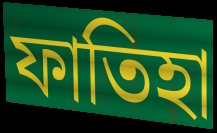
ফাতিহা